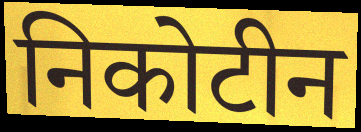
निकोटीन